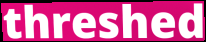
threshed